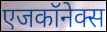
एजकॉनेक्स